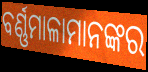
ବର୍ଣ୍ଣମାଳାମାନଙ୍କର